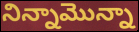
నిన్నామొన్నా